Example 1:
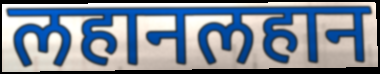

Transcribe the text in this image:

लहानलहान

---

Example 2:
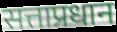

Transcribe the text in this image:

सत्ताप्रधान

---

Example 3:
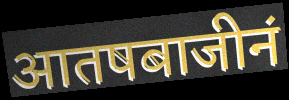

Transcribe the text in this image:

आतषबाजीनं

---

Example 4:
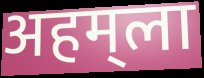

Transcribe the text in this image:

अहम्‌ला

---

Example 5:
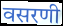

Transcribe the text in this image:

वसरणी